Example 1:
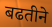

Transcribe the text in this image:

बढतीने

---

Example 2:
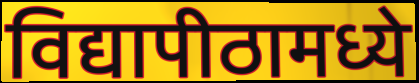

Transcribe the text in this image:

विद्यापीठामध्ये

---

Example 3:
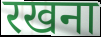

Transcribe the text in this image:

रखना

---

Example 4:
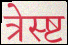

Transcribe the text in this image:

त्रेस्ष्ट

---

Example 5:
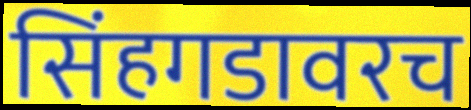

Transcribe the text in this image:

सिंहगडावरच